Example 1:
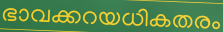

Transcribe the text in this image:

ഭാവക്കറയധികതരം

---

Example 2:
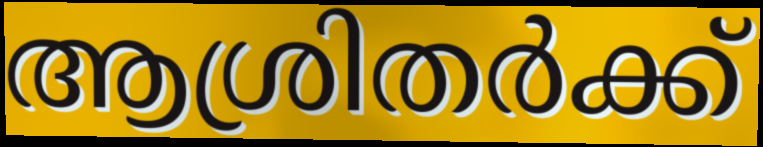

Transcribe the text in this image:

ആശ്രിതർക്ക്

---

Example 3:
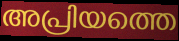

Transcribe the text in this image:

അപ്രിയത്തെ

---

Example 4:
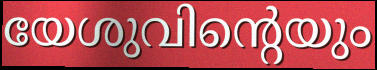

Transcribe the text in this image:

യേശുവിന്റെയും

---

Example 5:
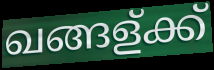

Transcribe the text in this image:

ഖങ്ങള്ക്ക്